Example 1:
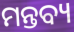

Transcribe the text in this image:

ମନ୍ତବ୍ୟ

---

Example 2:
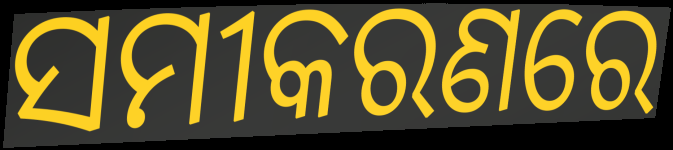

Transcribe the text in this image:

ସମୀକରଣରେ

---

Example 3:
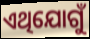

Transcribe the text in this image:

ଏଥିଯୋଗୁଁ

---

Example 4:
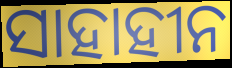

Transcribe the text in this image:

ସାହାହୀନ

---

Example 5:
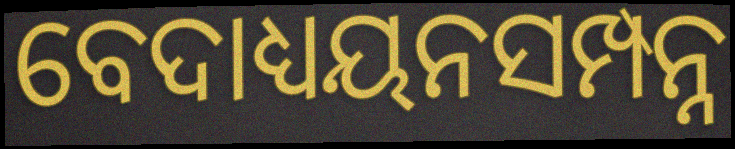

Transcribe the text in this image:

ବେଦାଧ୍ୟୟନସମ୍ପନ୍ନ